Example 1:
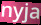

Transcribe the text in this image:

nyja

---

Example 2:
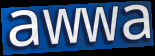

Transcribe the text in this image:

awwa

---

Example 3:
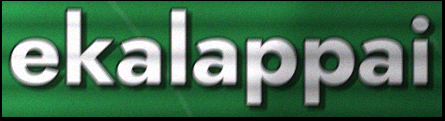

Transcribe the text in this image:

ekalappai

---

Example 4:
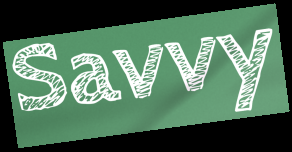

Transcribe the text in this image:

Savvy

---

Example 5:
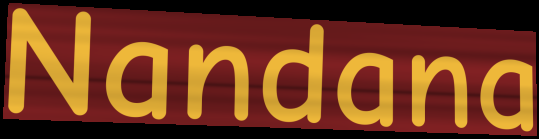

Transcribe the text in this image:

Nandana